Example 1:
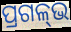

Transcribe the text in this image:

ପ୍ରଗଳ୍‌ଭ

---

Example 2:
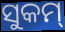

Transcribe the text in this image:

ସୁକମ୍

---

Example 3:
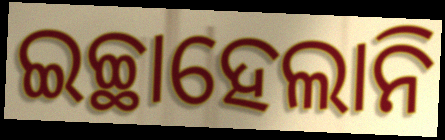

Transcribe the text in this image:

ଇଚ୍ଛାହେଲାନି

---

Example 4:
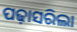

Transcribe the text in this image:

ପଢ଼ାସରିଲା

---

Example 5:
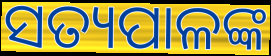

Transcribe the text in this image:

ସତ୍ୟପାଳଙ୍କ